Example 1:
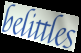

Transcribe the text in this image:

belittles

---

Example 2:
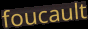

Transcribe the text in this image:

foucault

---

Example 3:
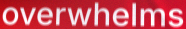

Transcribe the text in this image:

overwhelms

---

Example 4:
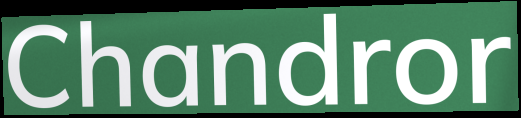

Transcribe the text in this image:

Chandror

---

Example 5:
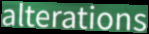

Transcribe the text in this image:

alterations